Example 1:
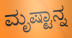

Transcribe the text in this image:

ಮೃಷ್ಟಾನ್ನ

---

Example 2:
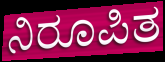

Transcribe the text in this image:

ನಿರೂಪಿತ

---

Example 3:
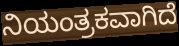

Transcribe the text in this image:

ನಿಯಂತ್ರಕವಾಗಿದೆ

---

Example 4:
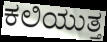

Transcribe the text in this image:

ಕಲಿಯುತ್ತ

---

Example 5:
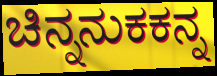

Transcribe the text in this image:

ಚಿನ್ನನುಕಕನ್ನ